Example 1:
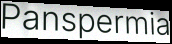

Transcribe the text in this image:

Panspermia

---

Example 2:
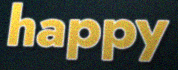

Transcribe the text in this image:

happy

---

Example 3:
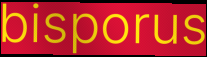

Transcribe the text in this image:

bisporus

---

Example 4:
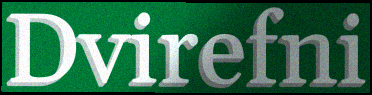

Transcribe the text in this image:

Dvirefni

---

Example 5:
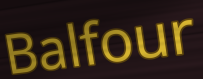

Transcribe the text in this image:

Balfour